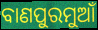
ବାଣପୁରମୁଆଁ